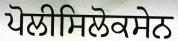
ਪੋਲੀਸਿਲੋਕਸੇਨ